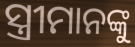
ସ୍ତ୍ରୀମାନଙ୍କୁ